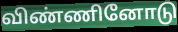
விண்ணினோடு